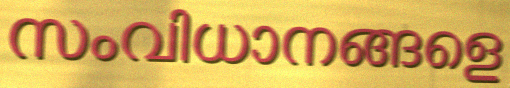
സംവിധാനങ്ങളെ